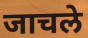
जाचले